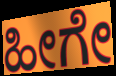
ಹೀಗೇ